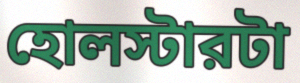
হোলস্টারটা